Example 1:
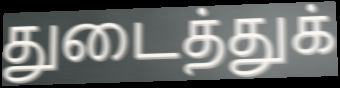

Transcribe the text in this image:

துடைத்துக்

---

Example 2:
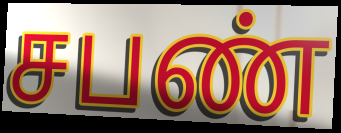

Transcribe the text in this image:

சபண்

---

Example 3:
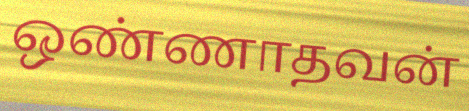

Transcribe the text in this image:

ஒண்ணாதவன்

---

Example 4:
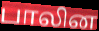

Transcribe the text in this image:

பாலின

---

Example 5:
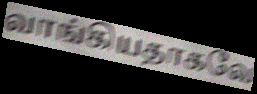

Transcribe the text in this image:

வாங்கியதாகவே